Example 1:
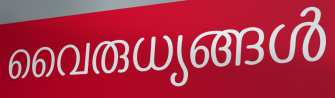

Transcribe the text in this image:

വൈരുധ്യങ്ങൾ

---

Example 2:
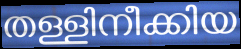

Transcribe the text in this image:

തള്ളിനീക്കിയ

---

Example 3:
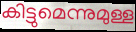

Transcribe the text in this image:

കിട്ടുമെന്നുമുള്ള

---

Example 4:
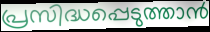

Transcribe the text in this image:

പ്രസിദ്ധപ്പെടുത്താൻ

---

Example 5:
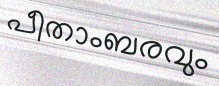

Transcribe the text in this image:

പീതാംബരവും